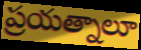
ప్రయత్నాలూ